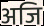
अजि